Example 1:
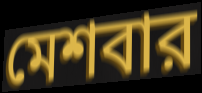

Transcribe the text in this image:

মেশবার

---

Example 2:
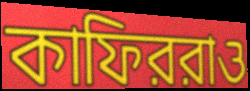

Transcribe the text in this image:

কাফিররাও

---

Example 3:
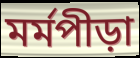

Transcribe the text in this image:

মর্মপীড়া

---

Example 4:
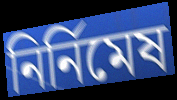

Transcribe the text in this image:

নির্নিমেষ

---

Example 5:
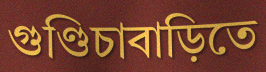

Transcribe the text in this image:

গুণ্ডিচাবাড়িতে